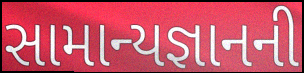
સામાન્યજ્ઞાનની